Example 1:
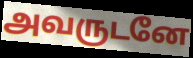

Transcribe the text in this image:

அவருடனே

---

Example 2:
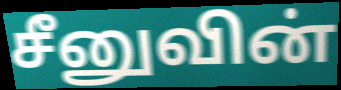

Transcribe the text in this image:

சீனுவின்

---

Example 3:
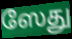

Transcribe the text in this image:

ஸேது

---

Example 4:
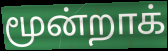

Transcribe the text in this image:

மூன்றாக்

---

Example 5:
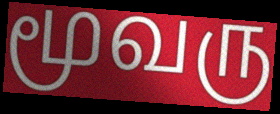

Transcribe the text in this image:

மூவரு